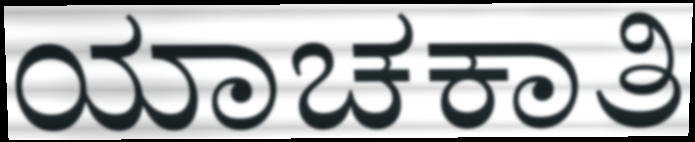
ಯಾಚಕಾತಿ